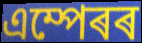
এম্পেৰৰ